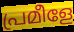
പ്രമീളേ